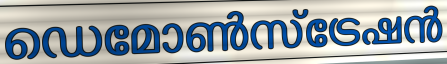
ഡെമോൺസ്ട്രേഷൻ